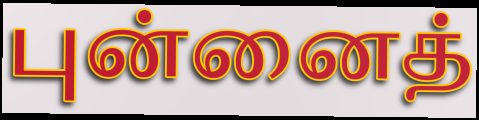
புன்னைத்